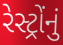
રેસ્ટ્રોંનું